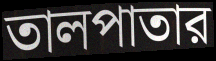
তালপাতার